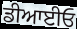
ਡੀਆਈਓ